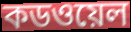
কডওয়েল